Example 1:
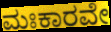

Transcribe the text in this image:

ಮಃಕಾರವೇ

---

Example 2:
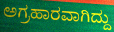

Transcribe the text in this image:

ಅಗ್ರಹಾರವಾಗಿದ್ದು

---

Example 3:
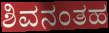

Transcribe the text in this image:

ಶಿವನಂತಹ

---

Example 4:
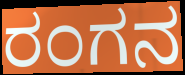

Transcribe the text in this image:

ರಂಗನ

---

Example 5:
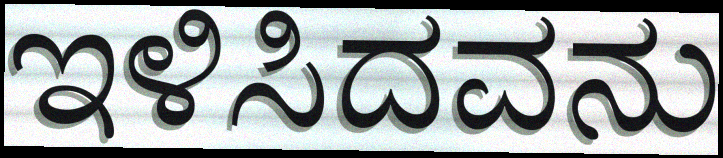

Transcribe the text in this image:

ಇಳಿಸಿದವನು